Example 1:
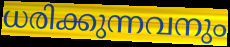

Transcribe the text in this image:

ധരിക്കുന്നവനും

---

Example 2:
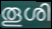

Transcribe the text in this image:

തൂശി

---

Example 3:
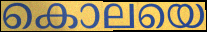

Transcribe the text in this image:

കൊലയെ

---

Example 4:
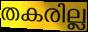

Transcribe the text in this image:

തകരില്ല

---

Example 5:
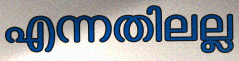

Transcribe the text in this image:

എന്നതിലല്ല